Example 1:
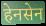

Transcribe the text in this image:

हेनसेन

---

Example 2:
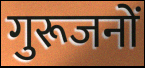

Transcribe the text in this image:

गुरूजनों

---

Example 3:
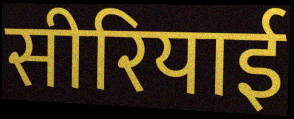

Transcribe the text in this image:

सीरियाई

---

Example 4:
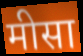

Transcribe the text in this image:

मीसा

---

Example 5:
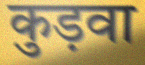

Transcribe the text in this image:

कुड़वा